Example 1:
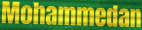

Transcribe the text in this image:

Mohammedan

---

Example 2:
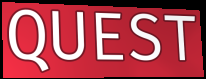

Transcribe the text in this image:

QUEST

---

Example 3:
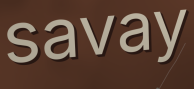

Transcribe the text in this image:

savay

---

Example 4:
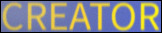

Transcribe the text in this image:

CREATOR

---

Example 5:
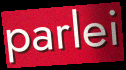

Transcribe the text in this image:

parlei